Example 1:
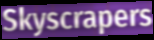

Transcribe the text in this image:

Skyscrapers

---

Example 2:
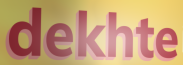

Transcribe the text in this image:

dekhte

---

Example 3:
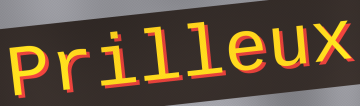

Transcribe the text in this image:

Prilleux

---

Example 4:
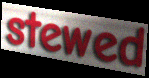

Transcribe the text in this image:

stewed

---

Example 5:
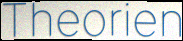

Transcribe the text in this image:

Theorien